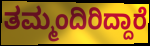
ತಮ್ಮಂದಿರಿದ್ದಾರೆ